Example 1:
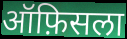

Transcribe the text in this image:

ऑफ़िसला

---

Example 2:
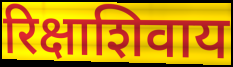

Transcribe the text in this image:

रिक्षाशिवाय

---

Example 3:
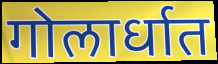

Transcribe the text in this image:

गोलार्धात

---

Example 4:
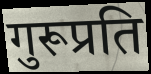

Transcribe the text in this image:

गुरूप्रति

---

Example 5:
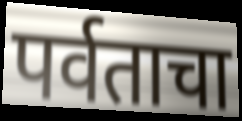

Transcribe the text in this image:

पर्वताचा